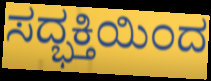
ಸದ್ಭಕ್ತಿಯಿಂದ